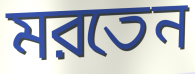
মরতেন